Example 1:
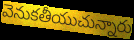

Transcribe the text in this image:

వెనుకతీయుచున్నారు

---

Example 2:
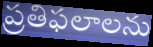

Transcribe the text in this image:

ప్రతిఫలాలను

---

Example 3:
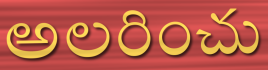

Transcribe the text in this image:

అలరించు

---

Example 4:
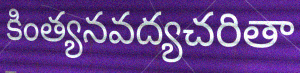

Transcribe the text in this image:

కింత్యనవద్యచరితా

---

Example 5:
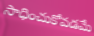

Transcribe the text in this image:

సాధించుకోవడమే